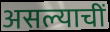
असल्याचीं